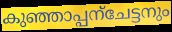
കുഞ്ഞാപ്പന്ചേട്ടനും